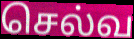
செல்வ